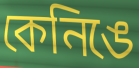
কেনিঙে